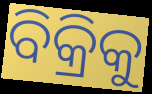
ବିକ୍ରିକୁ